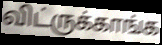
விட்ருக்காங்க